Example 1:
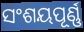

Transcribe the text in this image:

ସଂଶୟପୂର୍ଣ୍ଣ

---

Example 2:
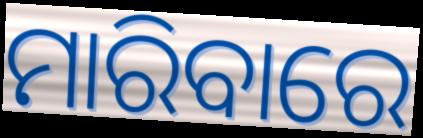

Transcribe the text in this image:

ମାରିବାରେ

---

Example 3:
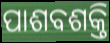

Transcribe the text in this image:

ପାଶବଶକ୍ତି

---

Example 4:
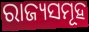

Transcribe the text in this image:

ରାଜ୍ୟସମୂହ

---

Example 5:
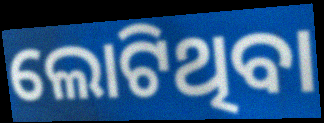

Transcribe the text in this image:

ଲୋଟିଥିବା